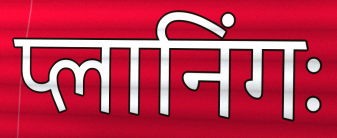
प्लानिंगः